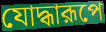
যোদ্ধারূপে